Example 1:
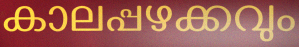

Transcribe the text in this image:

കാലപ്പഴക്കവും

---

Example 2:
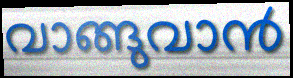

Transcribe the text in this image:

വാങ്ങുവാൻ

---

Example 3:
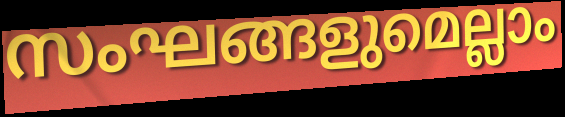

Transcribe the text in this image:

സംഘങ്ങളുമെല്ലാം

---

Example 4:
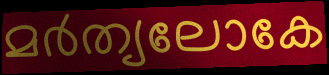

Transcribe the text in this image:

മർത്യലോകേ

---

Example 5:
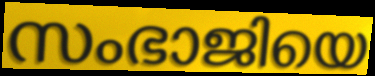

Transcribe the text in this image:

സംഭാജിയെ